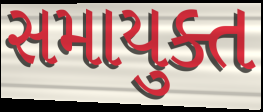
સમાયુક્ત